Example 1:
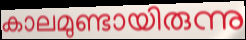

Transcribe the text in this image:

കാലമുണ്ടായിരുന്നു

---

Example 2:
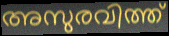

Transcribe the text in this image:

അസുരവിത്ത്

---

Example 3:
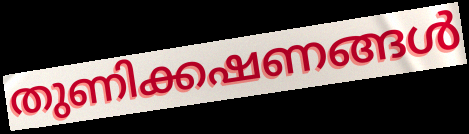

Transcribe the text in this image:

തുണിക്കഷണങ്ങൾ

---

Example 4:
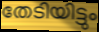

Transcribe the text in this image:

തേടിയിട്ടും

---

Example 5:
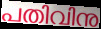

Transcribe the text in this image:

പതിവിനു